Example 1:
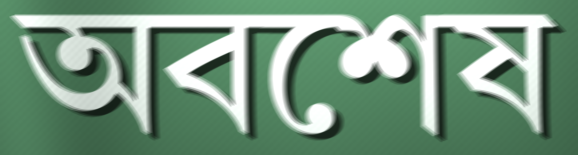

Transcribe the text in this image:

অবশেষ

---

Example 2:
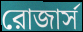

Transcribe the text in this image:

রোজার্স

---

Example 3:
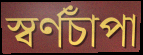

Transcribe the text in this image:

স্বর্ণচাঁপা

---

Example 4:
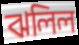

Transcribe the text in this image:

ঝলিল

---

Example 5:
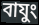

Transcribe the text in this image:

বাযুং